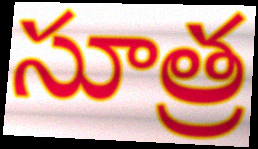
సూత్ర